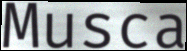
Musca